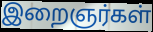
இறைஞர்கள்